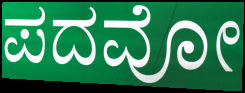
ಪದವೋ